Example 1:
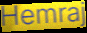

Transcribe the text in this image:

Hemraj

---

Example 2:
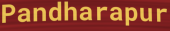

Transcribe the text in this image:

Pandharapur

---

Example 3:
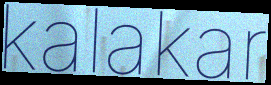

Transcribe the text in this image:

kalakar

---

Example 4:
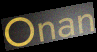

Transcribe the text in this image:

Onan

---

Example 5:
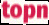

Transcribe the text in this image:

topn